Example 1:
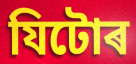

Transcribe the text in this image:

যিটোৰ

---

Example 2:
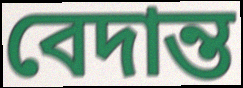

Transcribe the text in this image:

বেদান্ত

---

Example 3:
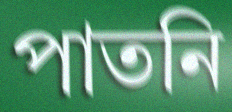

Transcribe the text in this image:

পাতনি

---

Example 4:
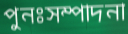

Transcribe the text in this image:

পুনঃসম্পাদনা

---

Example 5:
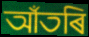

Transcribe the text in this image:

আঁতৰি